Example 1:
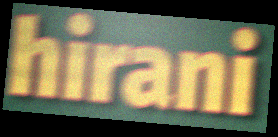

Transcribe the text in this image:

hirani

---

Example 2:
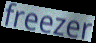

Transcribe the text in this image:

freezer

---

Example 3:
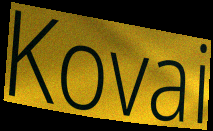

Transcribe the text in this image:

Kovai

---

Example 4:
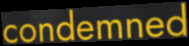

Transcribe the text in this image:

condemned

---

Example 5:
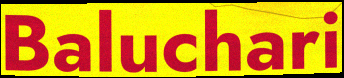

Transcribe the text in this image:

Baluchari